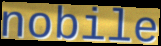
nobile